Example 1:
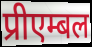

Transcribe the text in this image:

प्रीएम्बल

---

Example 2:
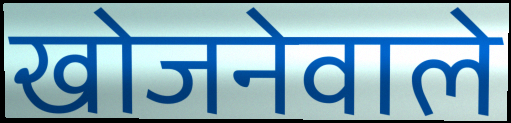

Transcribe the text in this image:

खोजनेवाले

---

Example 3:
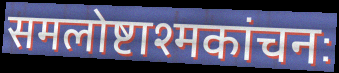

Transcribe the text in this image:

समलोष्टाश्मकांचनः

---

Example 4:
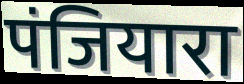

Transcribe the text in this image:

पंजियारा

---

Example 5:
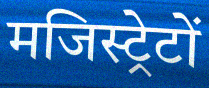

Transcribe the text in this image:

मजिस्ट्रेटों